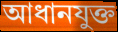
আধানযুক্ত